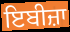
ਇਬੀਜ਼ਾ